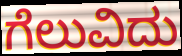
ಗೆಲುವಿದು